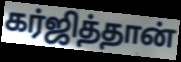
கர்ஜித்தான்